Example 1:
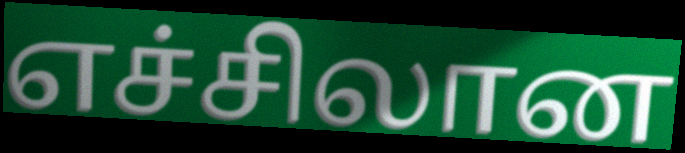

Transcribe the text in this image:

எச்சிலான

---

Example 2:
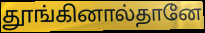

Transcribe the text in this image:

தூங்கினால்தானே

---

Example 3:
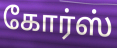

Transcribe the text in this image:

கோர்ஸ்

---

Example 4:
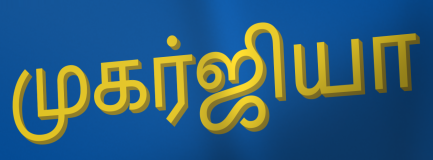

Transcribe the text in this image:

முகர்ஜியா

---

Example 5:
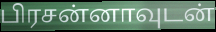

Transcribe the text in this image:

பிரசன்னாவுடன்